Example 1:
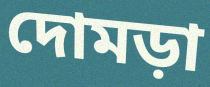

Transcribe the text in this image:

দোমড়া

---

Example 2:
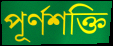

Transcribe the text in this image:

পূর্ণশক্তি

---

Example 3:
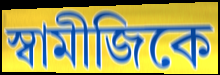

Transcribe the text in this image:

স্বামীজিকে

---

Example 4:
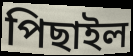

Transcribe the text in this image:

পিছাইল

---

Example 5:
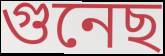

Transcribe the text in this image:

গুনেছ